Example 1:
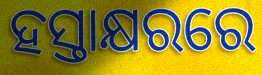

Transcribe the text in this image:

ହସ୍ତାକ୍ଷରରେ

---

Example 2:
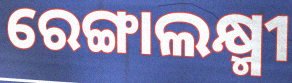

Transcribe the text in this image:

ରେଙ୍ଗାଲକ୍ଷ୍ମୀ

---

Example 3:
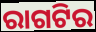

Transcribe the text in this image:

ରାଗଟିର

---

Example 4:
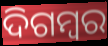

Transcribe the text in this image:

ଦିଗମ୍ବର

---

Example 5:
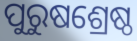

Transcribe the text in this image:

ପୁରୁଷଶ୍ରେଷ୍ଠ